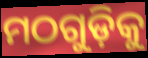
ମଠଗୁଡ଼ିକୁ